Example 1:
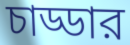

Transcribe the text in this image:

চাড্ডার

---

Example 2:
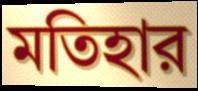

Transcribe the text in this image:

মতিহার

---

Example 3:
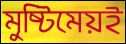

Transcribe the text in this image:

মুষ্টিমেয়ই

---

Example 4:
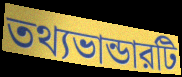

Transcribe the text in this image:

তথ্যভান্ডারটি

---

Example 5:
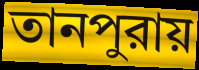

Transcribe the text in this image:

তানপুরায়